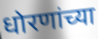
धोरणांच्या